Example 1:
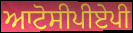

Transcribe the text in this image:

ਆਟੋਸੀਪੀਏਪੀ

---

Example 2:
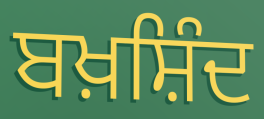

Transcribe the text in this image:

ਬਖ਼ਸ਼ਿੰਦ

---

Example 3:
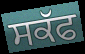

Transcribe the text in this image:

ਸਕੱਫ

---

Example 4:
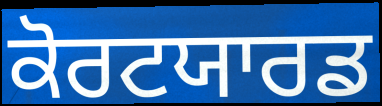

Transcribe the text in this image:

ਕੋਰਟਯਾਰਡ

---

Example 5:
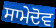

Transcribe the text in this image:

ਸਾਮੇਦੋਵ